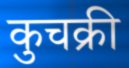
कुचक्री